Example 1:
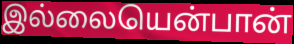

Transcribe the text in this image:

இல்லையென்பான்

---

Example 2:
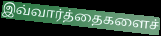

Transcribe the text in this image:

இவ்வார்த்தைகளைச்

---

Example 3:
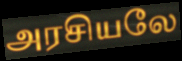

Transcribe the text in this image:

அரசியலே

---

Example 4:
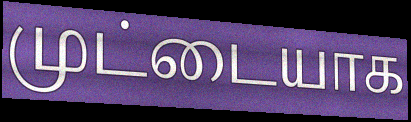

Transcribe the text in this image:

முட்டையாக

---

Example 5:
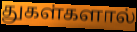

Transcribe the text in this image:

துகள்களால்